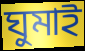
ঘুমাই